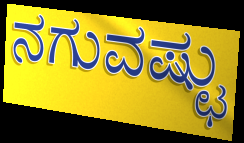
ನಗುವಷ್ಟು